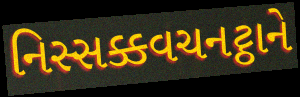
નિસ્સક્કવચનટ્ઠાને